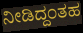
ನೀಡಿದ್ದಂತಹ